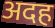
अदह